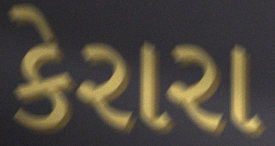
કેરારા